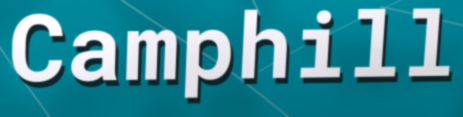
Camphill